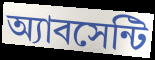
অ্যাবসেন্টি